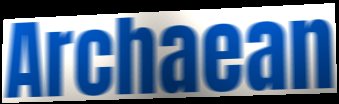
Archaean